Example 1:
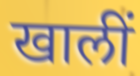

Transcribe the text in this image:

खालीं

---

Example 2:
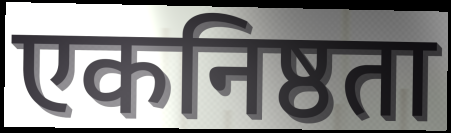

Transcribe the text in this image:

एकनिष्ठता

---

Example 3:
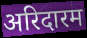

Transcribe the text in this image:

अरिदारम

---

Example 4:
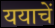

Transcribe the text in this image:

ययाचें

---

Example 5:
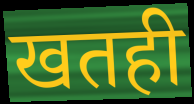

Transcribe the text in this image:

खतही